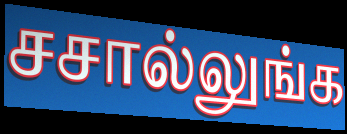
சசால்லுங்க